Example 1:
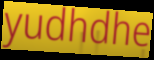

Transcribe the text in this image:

yudhdhe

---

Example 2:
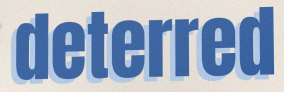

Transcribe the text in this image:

deterred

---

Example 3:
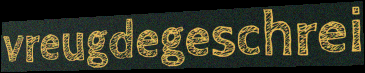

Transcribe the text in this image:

vreugdegeschrei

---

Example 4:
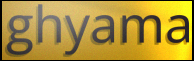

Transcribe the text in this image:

ghyama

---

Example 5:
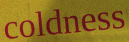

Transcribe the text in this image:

coldness